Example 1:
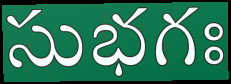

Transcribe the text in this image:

సుభగః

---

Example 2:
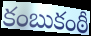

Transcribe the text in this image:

కంబుకంఠీ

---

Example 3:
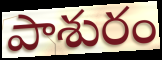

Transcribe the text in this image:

పాశురం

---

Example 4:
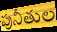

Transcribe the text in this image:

పునీతుల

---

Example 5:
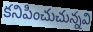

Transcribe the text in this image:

కనిపించుచున్నవి